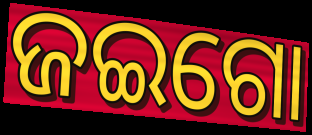
ଜଇଗୋ